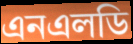
এনএলডি